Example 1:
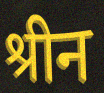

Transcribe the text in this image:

श्रीन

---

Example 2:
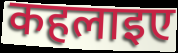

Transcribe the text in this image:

कहलाइए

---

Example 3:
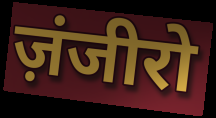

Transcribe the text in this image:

ज़ंजीरो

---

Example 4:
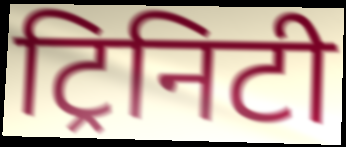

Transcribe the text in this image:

ट्रिनिटी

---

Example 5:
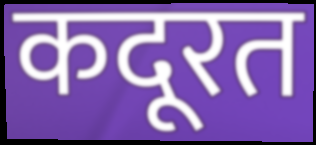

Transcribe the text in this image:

कदूरत